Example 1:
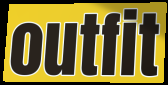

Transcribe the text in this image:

outfit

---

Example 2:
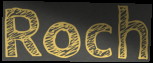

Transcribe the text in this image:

Roch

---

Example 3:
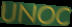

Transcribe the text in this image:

UNOC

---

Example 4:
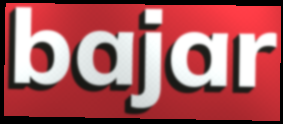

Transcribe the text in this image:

bajar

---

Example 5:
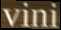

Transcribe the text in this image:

vini